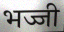
भज्जी